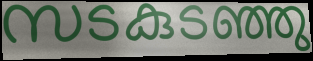
സടകുടഞ്ഞു